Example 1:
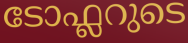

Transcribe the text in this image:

ടോഫ്ലറുടെ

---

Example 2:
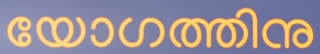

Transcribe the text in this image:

യോഗത്തിനു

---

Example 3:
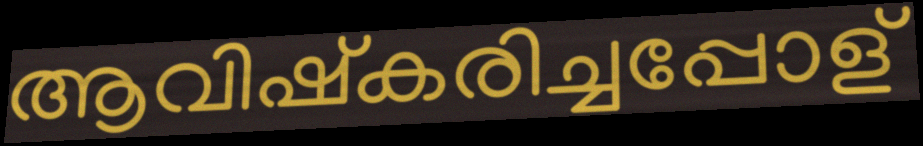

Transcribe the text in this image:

ആവിഷ്കരിച്ചപ്പോള്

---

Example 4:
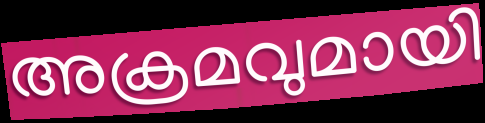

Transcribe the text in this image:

അക്രമവുമായി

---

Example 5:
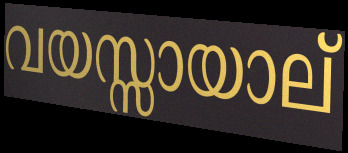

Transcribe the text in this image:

വയസ്സായാല്